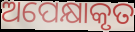
ଅପେକ୍ଷାକୃତ